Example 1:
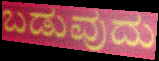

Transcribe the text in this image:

ಬಡುವುದು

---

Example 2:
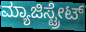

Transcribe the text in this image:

ಮ್ಯಾಜಿಸ್ಟ್ರೇಟ್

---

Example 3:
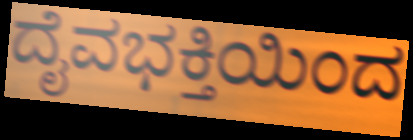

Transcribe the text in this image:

ದೈವಭಕ್ತಿಯಿಂದ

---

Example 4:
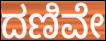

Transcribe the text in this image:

ದಣಿವೇ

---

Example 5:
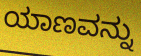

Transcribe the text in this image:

ಯಾಣವನ್ನು